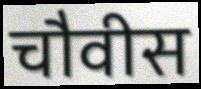
चौवीस